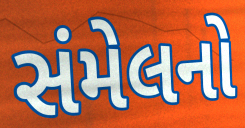
સંમેલનો